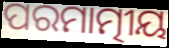
ପରମାତ୍ମୀୟ